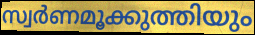
സ്വർണമൂക്കുത്തിയും